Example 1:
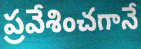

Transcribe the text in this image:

ప్రవేశించగానే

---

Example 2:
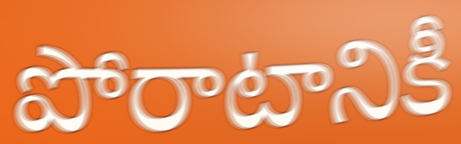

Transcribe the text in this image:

పోరాటానికీ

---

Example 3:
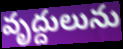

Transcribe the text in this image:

వృద్దులును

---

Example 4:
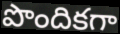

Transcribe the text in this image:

పొందికగా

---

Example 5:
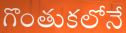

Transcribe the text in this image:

గొంతుకలోనే